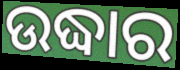
ଉଦ୍ଧାର